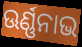
ଊର୍ଣ୍ଣନାଭ